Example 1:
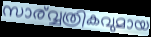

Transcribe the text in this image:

സാര്വ്വത്രികവുമായ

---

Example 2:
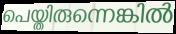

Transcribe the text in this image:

പെയ്തിരുന്നെങ്കിൽ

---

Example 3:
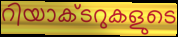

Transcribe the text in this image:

റിയാക്ടറുകളുടെ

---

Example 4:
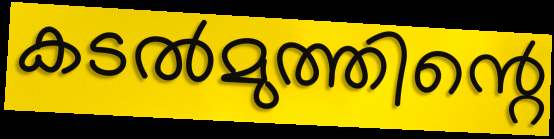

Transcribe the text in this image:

കടൽമുത്തിന്റെ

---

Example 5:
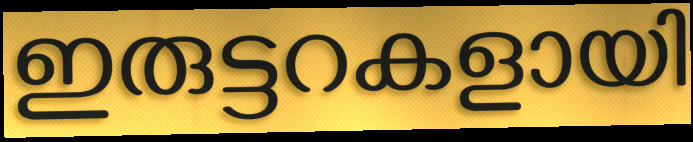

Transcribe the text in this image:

ഇരുട്ടറകളായി